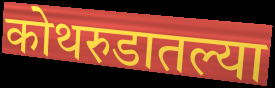
कोथरुडातल्या